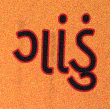
ગાંડું